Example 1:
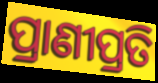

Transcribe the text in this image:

ପ୍ରାଣୀପ୍ରତି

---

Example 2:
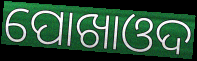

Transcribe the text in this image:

ପୋଖାଓଦ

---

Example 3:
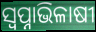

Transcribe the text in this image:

ସ୍ଵପ୍ନାଭିଳାଷୀ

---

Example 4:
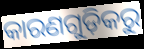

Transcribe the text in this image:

କାରଣଗୁଡ଼ିକରୁ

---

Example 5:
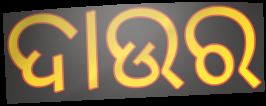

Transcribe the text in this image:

ଦାଉର